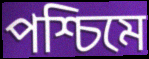
পশ্চিমে